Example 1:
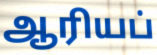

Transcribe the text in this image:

ஆரியப்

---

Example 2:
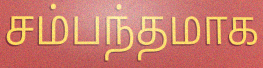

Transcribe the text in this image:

சம்பந்தமாக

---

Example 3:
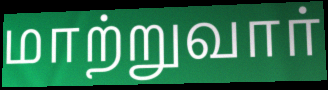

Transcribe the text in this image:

மாற்றுவார்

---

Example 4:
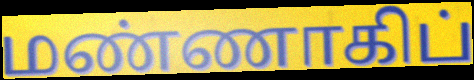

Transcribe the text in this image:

மண்ணாகிப்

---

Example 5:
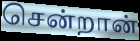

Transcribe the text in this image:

சென்றான்